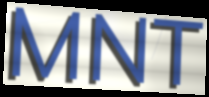
MNT